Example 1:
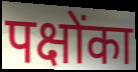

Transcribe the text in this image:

पक्षोंका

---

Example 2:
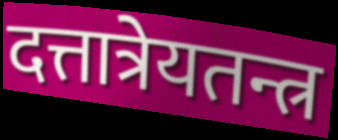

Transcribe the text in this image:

दत्तात्रेयतन्त्र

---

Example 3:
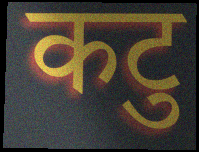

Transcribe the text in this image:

कटु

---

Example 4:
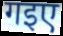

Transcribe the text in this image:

गइए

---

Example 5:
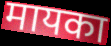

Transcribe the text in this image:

मायका